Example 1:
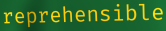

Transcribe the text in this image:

reprehensible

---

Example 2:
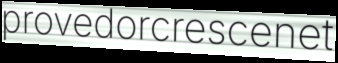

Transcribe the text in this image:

provedorcrescenet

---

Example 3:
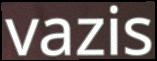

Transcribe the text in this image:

vazis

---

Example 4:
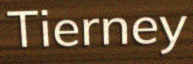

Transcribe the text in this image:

Tierney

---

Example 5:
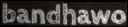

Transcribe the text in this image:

bandhawo